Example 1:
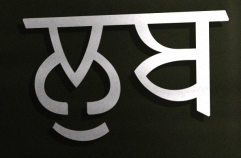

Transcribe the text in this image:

ਲੁਬ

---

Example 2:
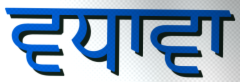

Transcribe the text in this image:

ਵਧਾਵਾ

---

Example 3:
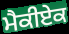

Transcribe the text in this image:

ਮੈਕੀਏਕ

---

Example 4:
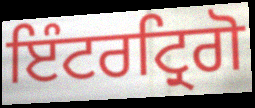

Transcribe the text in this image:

ਇੰਟਰਟ੍ਰਿਗੋ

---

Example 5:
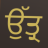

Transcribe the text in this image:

ਉੱਤ੍ਰ